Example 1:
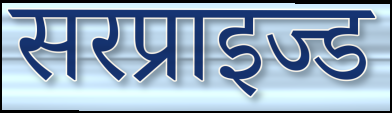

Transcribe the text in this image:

सरप्राइज्ड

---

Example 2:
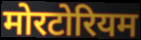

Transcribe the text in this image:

मोरटोरियम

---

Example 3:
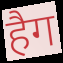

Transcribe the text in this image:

हैग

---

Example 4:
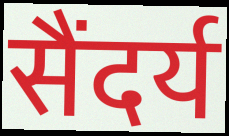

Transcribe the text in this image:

सैंदर्य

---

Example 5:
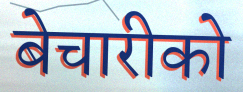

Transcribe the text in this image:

बेचारीको